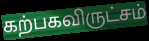
கற்பகவிருட்சம்